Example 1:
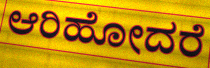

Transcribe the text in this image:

ಆರಿಹೋದರೆ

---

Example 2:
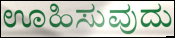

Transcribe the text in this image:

ಊಹಿಸುವುದು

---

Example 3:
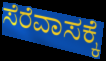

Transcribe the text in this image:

ಸೆರೆವಾಸಕ್ಕೆ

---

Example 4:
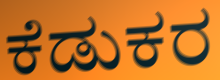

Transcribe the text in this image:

ಕೆಡುಕರ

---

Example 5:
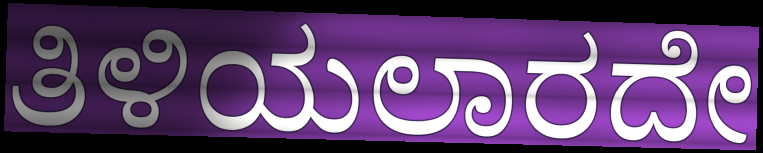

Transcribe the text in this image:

ತಿಳಿಯಲಾರದೇ